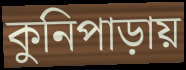
কুনিপাড়ায়